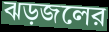
ঝড়জলের